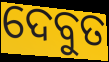
ଦେବୁତ